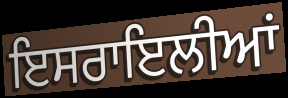
ਇਸਰਾਇਲੀਆਂ